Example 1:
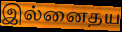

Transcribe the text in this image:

இல்னைதய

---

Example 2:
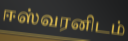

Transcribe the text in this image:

ஈஸ்வரனிடம்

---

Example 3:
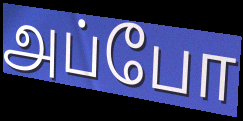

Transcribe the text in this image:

அப்போ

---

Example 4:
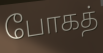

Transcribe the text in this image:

போகத்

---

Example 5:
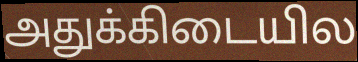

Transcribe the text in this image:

அதுக்கிடையில